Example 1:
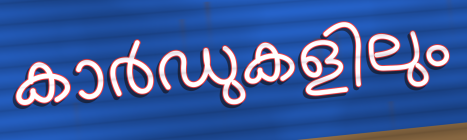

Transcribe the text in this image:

കാർഡുകളിലും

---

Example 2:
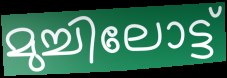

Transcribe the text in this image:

മുച്ചിലോട്ട്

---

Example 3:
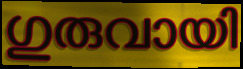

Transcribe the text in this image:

ഗുരുവായി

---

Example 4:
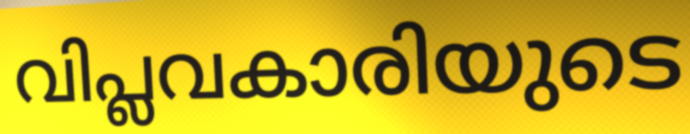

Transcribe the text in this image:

വിപ്ലവകാരിയുടെ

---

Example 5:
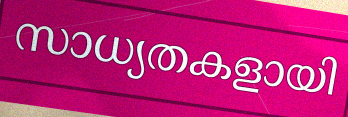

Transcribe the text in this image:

സാധ്യതകളായി